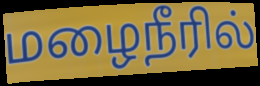
மழைநீரில்